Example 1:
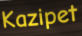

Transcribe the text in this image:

Kazipet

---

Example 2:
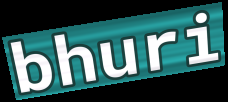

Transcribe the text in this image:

bhuri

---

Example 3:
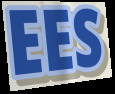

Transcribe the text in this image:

EES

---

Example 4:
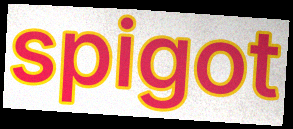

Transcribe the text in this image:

spigot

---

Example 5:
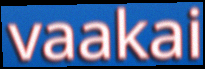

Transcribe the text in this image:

vaakai